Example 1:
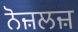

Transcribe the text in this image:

ਨੋਜ਼ਲਜ਼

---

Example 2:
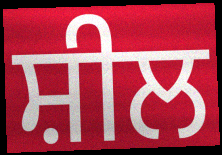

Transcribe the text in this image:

ਸ਼ੀਲ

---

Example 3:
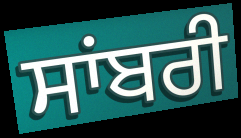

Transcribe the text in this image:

ਸਾਂਬਰੀ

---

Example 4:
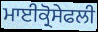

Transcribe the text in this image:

ਮਾਈਕ੍ਰੋਸੇਫਲੀ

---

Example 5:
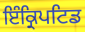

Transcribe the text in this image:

ਇੰਕ੍ਰਿਪਟਿਡ